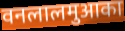
वनलालमुआका